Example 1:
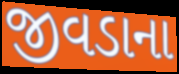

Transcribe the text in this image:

જીવડાના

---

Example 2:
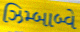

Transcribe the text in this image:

ઝિમ્બાબ્વે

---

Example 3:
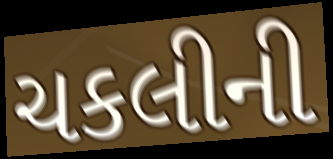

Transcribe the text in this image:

ચકલીની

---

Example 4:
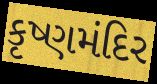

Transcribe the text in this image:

કૃષ્ણમંદિર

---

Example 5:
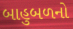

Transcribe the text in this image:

બાહુબળનો